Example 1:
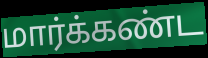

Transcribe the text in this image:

மார்க்கண்ட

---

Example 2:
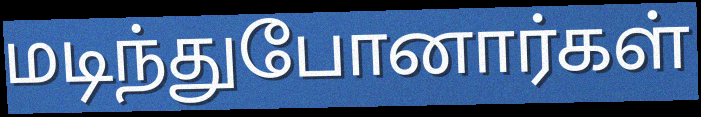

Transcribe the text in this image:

மடிந்துபோனார்கள்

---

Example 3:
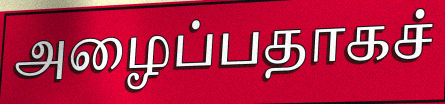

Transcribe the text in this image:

அழைப்பதாகச்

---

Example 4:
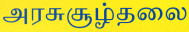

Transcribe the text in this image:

அரசுசூழ்தலை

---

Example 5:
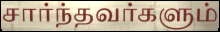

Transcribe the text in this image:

சார்ந்தவர்களும்